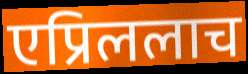
एप्रिललाच